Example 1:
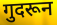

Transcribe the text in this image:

गुदरून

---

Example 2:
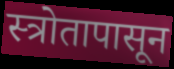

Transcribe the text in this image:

स्त्रोतापासून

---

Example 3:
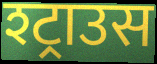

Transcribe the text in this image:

श्ट्राउस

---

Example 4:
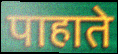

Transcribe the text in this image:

पाहाते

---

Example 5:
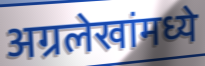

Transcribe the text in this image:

अग्रलेखांमध्ये